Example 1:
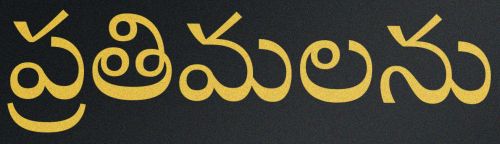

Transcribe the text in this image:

ప్రతిమలను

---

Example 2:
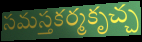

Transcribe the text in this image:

సమస్తకర్మకృచ్చ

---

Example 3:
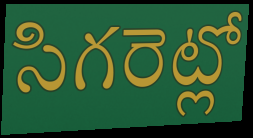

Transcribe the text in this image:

సిగరెట్లో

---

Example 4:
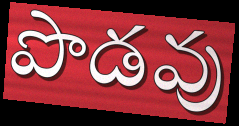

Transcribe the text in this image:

పొడవు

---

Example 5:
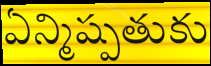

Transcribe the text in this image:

ఏన్మిష్పతుకు